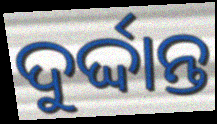
ଦୁର୍ଦ୍ଦାନ୍ତ